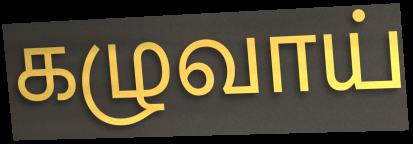
கழுவாய்